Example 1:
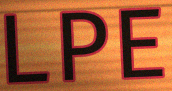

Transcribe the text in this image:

LPE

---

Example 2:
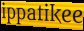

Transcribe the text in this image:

ippatikee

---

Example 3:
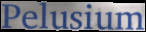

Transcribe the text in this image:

Pelusium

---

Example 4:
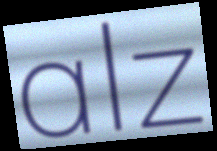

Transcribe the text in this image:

alz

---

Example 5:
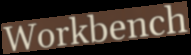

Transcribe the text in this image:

Workbench